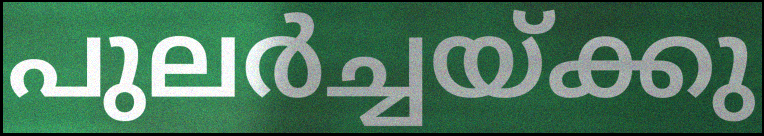
പുലർച്ചയ്ക്കു